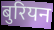
बुरियन